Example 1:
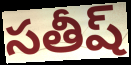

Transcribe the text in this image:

సతీష్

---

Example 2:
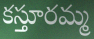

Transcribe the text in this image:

కస్తూరమ్మ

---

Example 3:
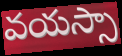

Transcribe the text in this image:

వయస్సా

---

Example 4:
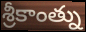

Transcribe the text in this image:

శ్రీకాంత్ను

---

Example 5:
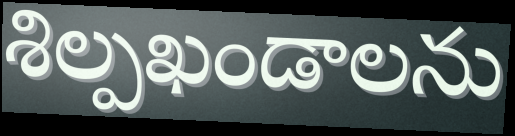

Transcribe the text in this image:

శిల్పఖండాలను